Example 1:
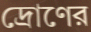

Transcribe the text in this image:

দ্রোণের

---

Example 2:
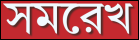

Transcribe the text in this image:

সমরেখ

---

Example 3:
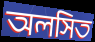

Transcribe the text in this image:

অলসিত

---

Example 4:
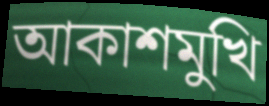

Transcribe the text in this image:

আকাশমুখি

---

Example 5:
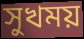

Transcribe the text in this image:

সুখময়